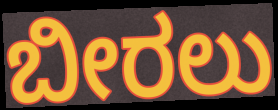
ಬೀರಲು